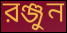
রঞ্জুন